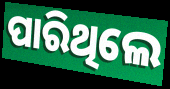
ପାରିଥିଲେ